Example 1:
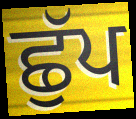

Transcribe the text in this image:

ਛੁੱਪ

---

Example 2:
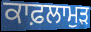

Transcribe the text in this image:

ਕਾਫ਼ਲਾਮੁੜ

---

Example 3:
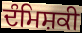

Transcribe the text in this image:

ਦੰਮਿਸ਼ਕੀ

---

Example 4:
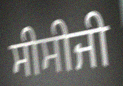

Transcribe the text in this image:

ਸੀਸੀਜੀ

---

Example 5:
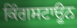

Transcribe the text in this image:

ਕਿੰਗਸਟਾਊਨ